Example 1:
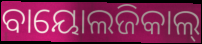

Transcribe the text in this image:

ବାୟୋଲଜିକାଲ୍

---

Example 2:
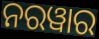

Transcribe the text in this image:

ନରୱାର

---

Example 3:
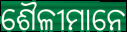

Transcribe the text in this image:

ଶୈଳୀମାନେ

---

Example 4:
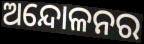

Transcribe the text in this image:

ଅନ୍ଦୋଳନର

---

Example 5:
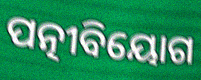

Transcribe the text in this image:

ପତ୍ନୀବିୟୋଗ